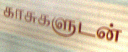
காசுகளுடன்